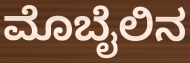
ಮೊಬೈಲಿನ